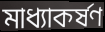
মাধ্যাকর্ষণ